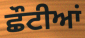
ਛੌਟੀਆਂ